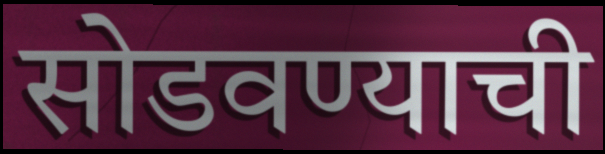
सोडवण्याची